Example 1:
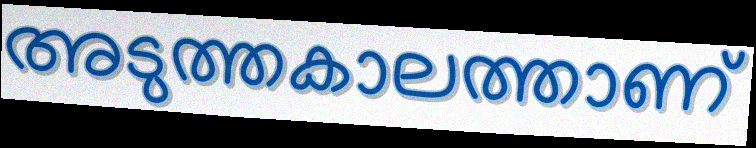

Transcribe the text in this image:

അടുത്തകാലത്താണ്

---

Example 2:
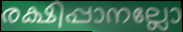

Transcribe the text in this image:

രക്ഷിപ്പാനല്ലോ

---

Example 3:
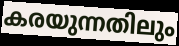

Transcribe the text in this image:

കരയുന്നതിലും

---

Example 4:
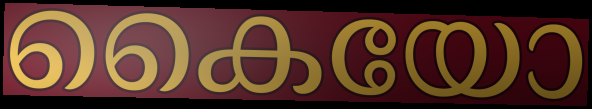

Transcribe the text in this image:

കൈയോ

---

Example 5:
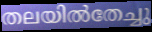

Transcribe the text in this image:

തലയിൽതേച്ചു